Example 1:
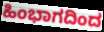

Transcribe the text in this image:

ಹಿಂಭಾಗದಿಂದ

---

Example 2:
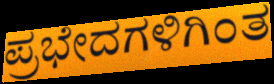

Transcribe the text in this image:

ಪ್ರಭೇದಗಳಿಗಿಂತ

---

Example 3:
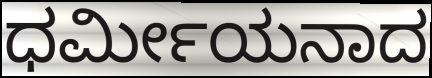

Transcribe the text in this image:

ಧರ್ಮೀಯನಾದ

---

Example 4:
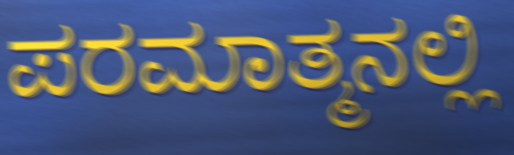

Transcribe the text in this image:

ಪರಮಾತ್ಮನಲ್ಲಿ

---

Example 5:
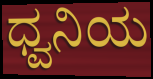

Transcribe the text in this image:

ಧ್ವನಿಯ